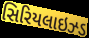
સિરિયલાઇઝ્ડ